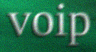
voip